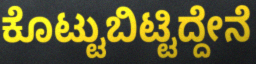
ಕೊಟ್ಟುಬಿಟ್ಟಿದ್ದೇನೆ